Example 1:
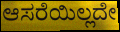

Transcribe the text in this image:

ಆಸರೆಯಿಲ್ಲದೇ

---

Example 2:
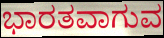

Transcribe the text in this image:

ಭಾರತವಾಗುವ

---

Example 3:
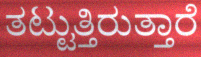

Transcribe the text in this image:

ತಟ್ಟುತ್ತಿರುತ್ತಾರೆ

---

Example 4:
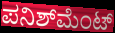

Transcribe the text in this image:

ಪನಿಶ್‌ಮೆಂಟ್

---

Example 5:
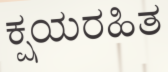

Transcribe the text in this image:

ಕ್ಷಯರಹಿತ